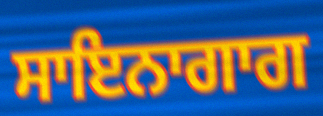
ਸਾਇਨਾਗਾਗ